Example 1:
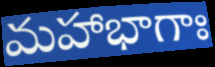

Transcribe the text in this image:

మహాభాగాః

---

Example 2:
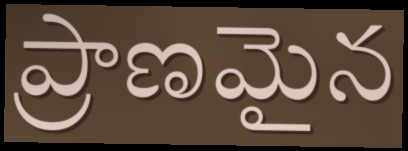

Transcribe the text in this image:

ప్రాణమైన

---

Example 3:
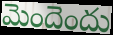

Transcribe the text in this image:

మెందెందు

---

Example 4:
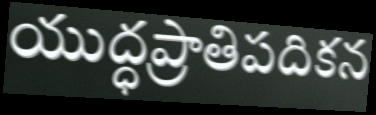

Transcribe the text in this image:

యుద్ధప్రాతిపదికన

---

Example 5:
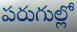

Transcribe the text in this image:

పరుగుల్లో